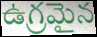
ఉగ్రమైన